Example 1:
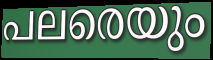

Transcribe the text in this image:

പലരെയും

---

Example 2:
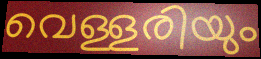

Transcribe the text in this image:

വെള്ളരിയും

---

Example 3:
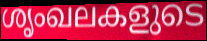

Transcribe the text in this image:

ശൃംഖലകളുടെ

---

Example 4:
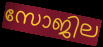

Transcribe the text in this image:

സോജില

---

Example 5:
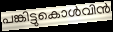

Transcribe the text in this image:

പങ്കിട്ടുകൊൾവിൻ